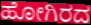
ಹೋಗಿರದ